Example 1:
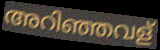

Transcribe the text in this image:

അറിഞ്ഞവള്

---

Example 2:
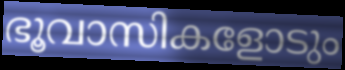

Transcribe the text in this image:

ഭൂവാസികളോടും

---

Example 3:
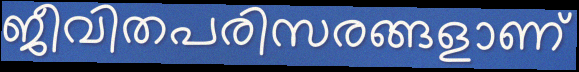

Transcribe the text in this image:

ജീവിതപരിസരങ്ങളാണ്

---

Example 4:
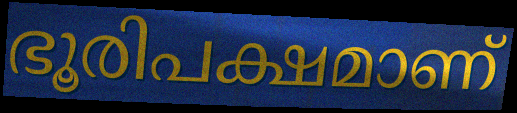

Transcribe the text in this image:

ഭൂരിപക്ഷമാണ്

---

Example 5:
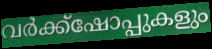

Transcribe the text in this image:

വർക്ക്ഷോപ്പുകളും